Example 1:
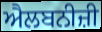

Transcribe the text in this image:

ਐਲਬਨੀਜ਼ੀ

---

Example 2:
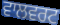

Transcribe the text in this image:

ਵਾਲਵਰਟ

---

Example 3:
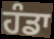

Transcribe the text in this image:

ਹੰਡਾ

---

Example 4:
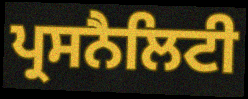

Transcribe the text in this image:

ਪ੍ਰਸਨੈਲਿਟੀ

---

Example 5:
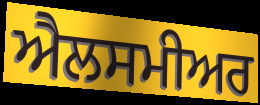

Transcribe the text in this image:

ਐਲਸਮੀਅਰ